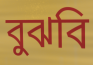
বুঝবি